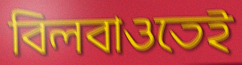
বিলবাওতেই